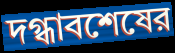
দগ্ধাবশেষের